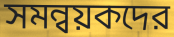
সমন্বয়কদের